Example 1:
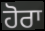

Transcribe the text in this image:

ਹੋਰਾ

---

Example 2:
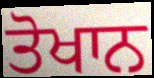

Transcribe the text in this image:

ਤੋਖਾਨ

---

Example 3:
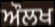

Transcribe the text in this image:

ਔਲਖ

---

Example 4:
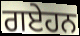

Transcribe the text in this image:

ਗਏਹਨ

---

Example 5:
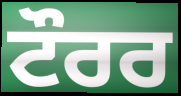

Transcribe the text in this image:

ਟੌਰਰ